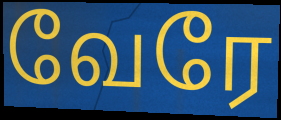
வேரே